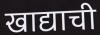
खाद्याची